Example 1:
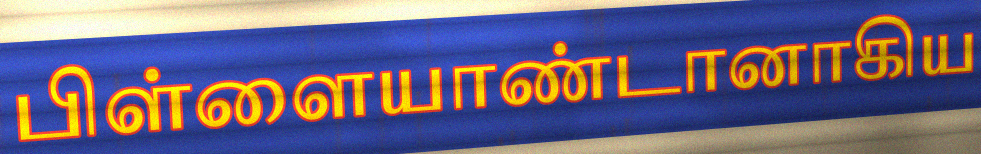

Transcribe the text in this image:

பிள்ளையாண்டானாகிய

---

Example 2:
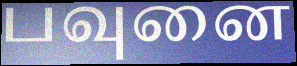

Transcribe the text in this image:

பவுனை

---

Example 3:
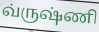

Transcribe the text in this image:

வ்ருஷ்ணி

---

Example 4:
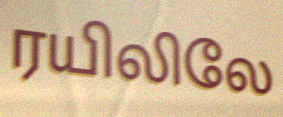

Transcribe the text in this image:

ரயிலிலே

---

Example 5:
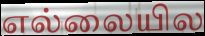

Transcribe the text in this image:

எல்லையில